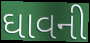
ઘાવની